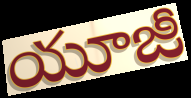
యూజీ